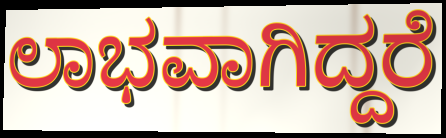
ಲಾಭವಾಗಿದ್ದರೆ